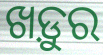
ଖଡ଼ୁର